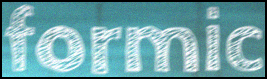
formic